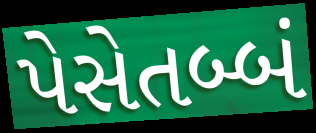
પેસેતબ્બં